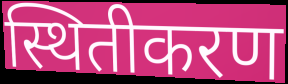
स्थितीकरण